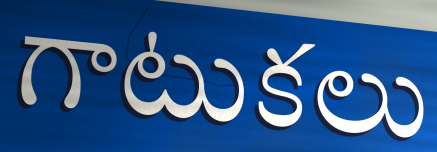
గాటుకలు